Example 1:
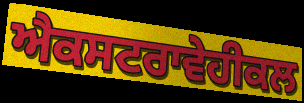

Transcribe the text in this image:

ਐਕਸਟਰਾਵੇਹੀਕਲ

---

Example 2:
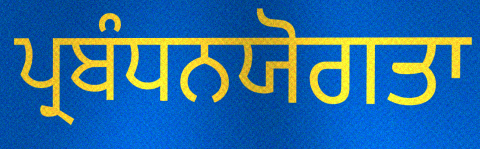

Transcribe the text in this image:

ਪ੍ਰਬੰਧਨਯੋਗਤਾ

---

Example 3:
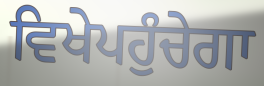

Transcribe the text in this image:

ਵਿਖੇਪਹੁੰਚੇਗਾ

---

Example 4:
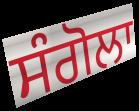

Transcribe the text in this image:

ਸੰਗੋਲਾ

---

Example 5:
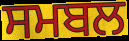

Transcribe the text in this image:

ਸਮਬਲ